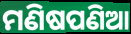
ମଣିଷପଣିଆ